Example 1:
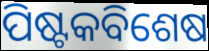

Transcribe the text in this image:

ପିଷ୍ଟକବିଶେଷ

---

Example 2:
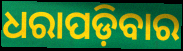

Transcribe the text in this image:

ଧରାପଡ଼ିବାର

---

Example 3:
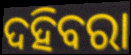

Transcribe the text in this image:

ଦହିବରା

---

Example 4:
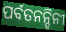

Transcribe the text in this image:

ପର୍ବତନନ୍ଦିନୀ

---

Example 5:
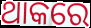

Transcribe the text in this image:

ଥାକରେ